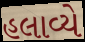
હલાવ્યે